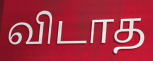
விடாத